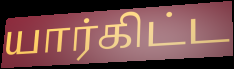
யார்கிட்ட